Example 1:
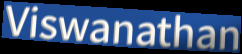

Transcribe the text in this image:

Viswanathan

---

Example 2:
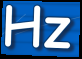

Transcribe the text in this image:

Hz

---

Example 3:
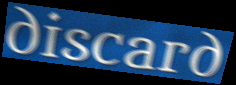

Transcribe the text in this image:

discard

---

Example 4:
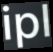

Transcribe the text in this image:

ipl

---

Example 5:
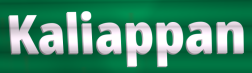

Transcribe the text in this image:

Kaliappan